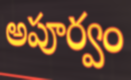
అపూర్వం